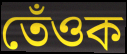
তেঁওক